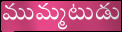
ముమ్మటుడు